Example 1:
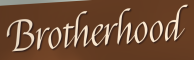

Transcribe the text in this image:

Brotherhood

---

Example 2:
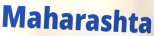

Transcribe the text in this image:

Maharashta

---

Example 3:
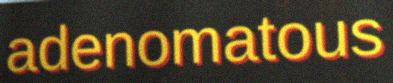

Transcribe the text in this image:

adenomatous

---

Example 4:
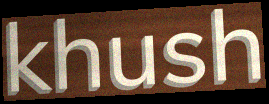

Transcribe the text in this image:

khush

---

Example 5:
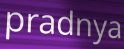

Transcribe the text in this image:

pradnya